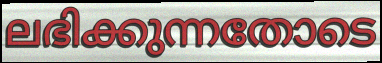
ലഭിക്കുന്നതോടെ